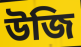
উজি